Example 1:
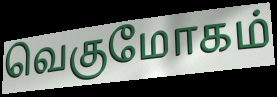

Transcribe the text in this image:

வெகுமோகம்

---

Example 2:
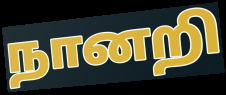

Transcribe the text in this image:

நானறி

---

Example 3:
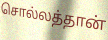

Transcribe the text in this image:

சொல்லத்தான்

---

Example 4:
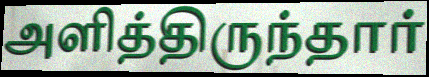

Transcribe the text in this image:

அளித்திருந்தார்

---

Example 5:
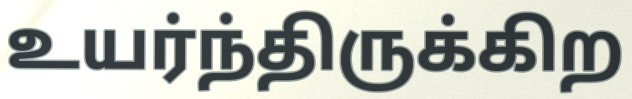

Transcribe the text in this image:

உயர்ந்திருக்கிற